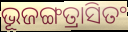
ଭୂଜଙ୍ଗତ୍ରାସିତଂ